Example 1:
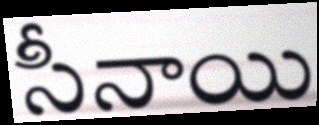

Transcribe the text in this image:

సీనాయి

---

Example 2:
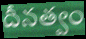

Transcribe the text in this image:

దీనత్వం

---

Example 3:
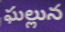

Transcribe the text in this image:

ఘల్లున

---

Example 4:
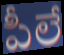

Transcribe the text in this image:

పీలే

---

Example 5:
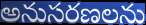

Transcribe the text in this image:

అనుసరణలను